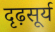
दृढ़सूर्य